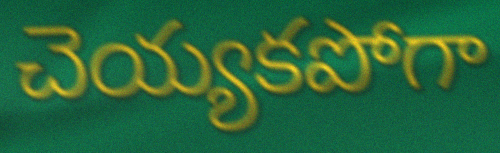
చెయ్యకపోగా